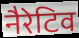
नैरेटिव